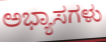
ಅಭ್ಯಾಸಗಳು